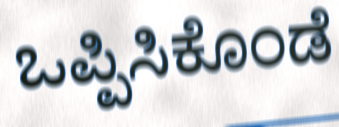
ಒಪ್ಪಿಸಿಕೊಂಡೆ